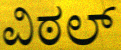
ವಿಠಲ್